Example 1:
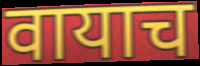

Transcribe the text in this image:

वायाच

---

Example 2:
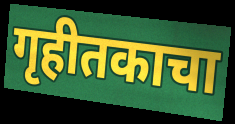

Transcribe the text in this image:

गृहीतकाचा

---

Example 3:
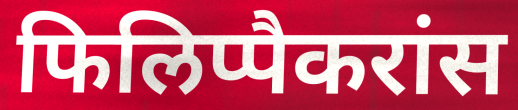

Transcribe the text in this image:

फिलिप्पैकरांस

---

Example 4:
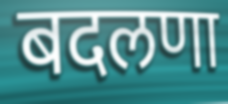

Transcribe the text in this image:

बदलणा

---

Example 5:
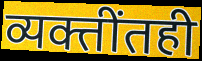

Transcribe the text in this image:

व्यक्तींतही